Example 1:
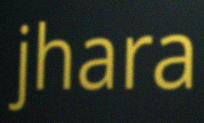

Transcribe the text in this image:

jhara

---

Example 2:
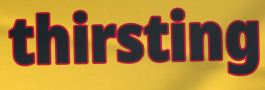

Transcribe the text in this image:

thirsting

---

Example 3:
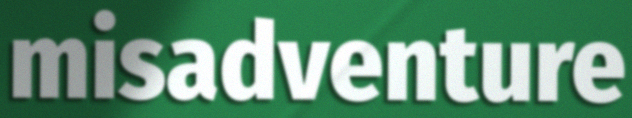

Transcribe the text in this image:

misadventure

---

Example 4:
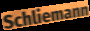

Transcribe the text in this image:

Schliemann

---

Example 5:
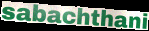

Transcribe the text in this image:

sabachthani